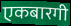
एकबारगी